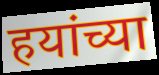
हयांच्या